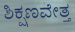
ಶಿಕ್ಷಣವೇತ್ತ